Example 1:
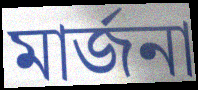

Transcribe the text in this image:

মার্জনা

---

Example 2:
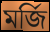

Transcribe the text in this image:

মর্জি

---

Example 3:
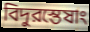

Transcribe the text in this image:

বিদুরস্তেষাং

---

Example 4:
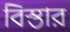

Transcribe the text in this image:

বিস্তার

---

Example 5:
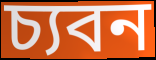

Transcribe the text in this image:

চ্যবন